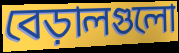
বেড়ালগুলো